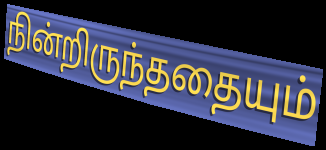
நின்றிருந்ததையும்